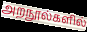
அறநூல்களில்